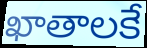
ఖాతాలకే